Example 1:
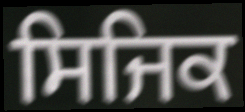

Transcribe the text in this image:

ਸਿਜਿਕ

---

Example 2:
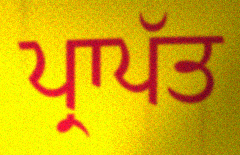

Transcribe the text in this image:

ਪ੍ਰਾਪੱਤ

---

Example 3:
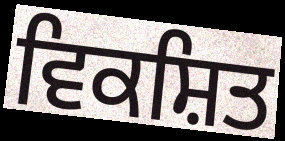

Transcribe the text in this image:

ਵਿਕਸ਼ਿਤ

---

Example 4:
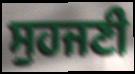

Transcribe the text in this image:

ਸੁਹਜਣੀ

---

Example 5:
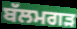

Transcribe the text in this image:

ਬੱਲਮਗੜ